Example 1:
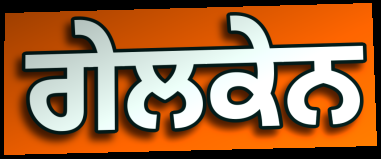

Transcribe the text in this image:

ਗੇਲਕੇਨ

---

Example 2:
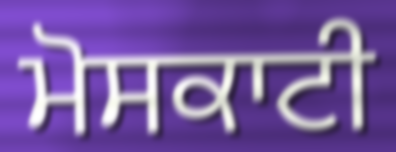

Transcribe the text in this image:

ਮੋਸਕਾਟੀ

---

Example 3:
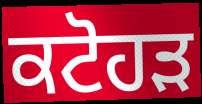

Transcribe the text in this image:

ਕਟੋਹੜ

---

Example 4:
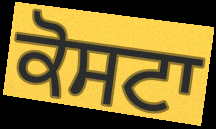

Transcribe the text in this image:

ਕੋਸਟਾ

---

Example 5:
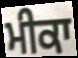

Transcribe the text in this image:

ਮੀਕਾ